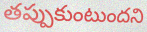
తప్పుకుంటుందని